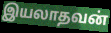
இயலாதவன்